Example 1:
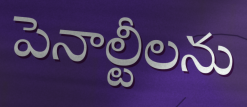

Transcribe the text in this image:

పెనాల్టీలను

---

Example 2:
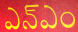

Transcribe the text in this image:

ఎన్ఎం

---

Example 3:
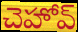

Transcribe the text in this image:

చెహోవ్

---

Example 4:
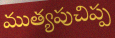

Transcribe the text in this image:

ముత్యపుచిప్ప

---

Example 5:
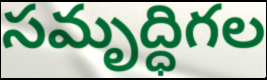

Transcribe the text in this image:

సమృద్ధిగల